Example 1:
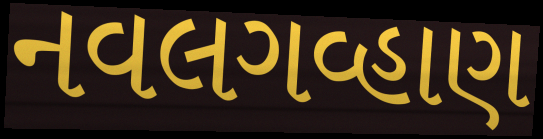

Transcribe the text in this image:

નવલગવ્હાણ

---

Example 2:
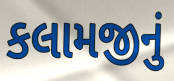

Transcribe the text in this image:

કલામજીનું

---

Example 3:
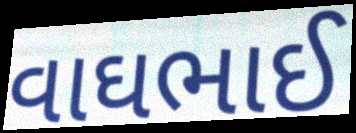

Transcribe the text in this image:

વાઘભાઈ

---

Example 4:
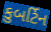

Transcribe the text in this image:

કુબર્ટિન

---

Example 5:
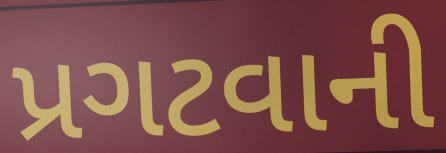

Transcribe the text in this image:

પ્રગટવાની